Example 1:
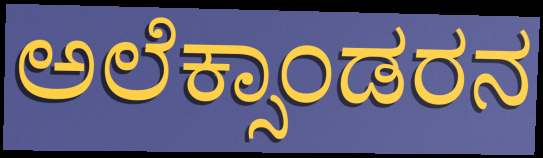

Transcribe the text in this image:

ಅಲೆಕ್ಸಾಂಡರನ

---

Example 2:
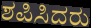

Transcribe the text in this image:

ಶಪಿಸಿದರು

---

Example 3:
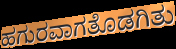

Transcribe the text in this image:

ಹಗುರವಾಗತೊಡಗಿತು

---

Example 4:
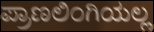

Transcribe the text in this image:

ಪ್ರಾಣಲಿಂಗಿಯಲ್ಲ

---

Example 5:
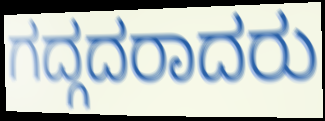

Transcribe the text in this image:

ಗದ್ಗದರಾದರು